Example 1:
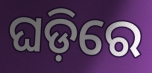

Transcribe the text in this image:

ଘଡ଼ିରେ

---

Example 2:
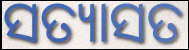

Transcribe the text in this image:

ସତ୍ୟାସତ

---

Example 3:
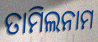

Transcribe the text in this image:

ତାମିଲନାମ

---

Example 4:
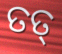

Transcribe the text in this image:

ତତ୍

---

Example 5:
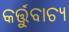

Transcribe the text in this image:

କର୍ତ୍ତୁବାଚ୍ୟ